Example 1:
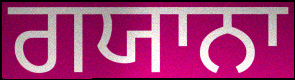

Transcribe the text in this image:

ਗਯਾਨਾ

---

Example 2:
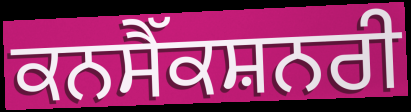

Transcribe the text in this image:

ਕਨਸੈੱਕਸ਼ਨਰੀ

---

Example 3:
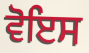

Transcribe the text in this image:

ਵੋਇਸ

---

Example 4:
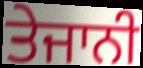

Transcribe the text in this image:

ਤੇਜਾਨੀ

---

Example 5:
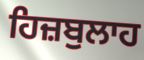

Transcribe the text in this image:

ਹਿਜ਼ਬੁਲਾਹ